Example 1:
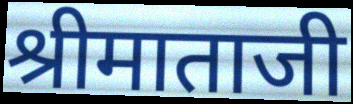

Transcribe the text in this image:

श्रीमाताजी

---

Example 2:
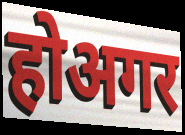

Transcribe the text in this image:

होअगर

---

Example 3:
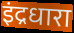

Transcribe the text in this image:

इंद्रधारा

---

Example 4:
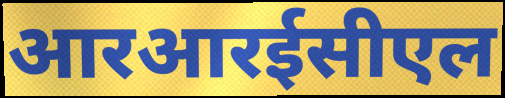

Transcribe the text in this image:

आरआरईसीएल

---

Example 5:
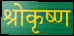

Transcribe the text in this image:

श्रोकृष्ण